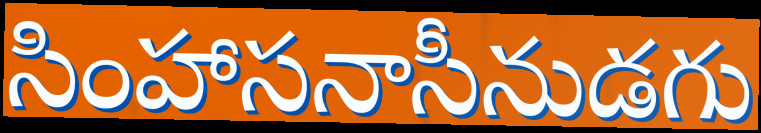
సింహాసనాసీనుడగు